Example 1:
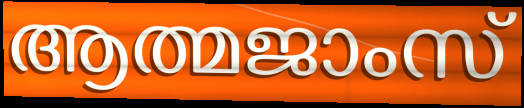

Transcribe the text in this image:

ആത്മജാംസ്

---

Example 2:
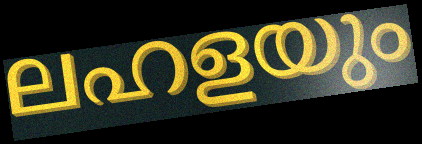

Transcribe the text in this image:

ലഹളയും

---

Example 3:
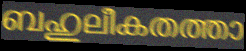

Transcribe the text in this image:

ബഹുലീകതത്താ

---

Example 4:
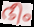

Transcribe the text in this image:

ഭീം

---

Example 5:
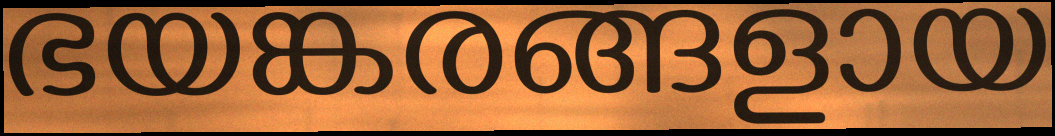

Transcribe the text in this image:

ഭയങ്കരങ്ങളായ